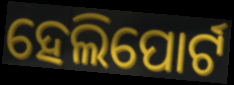
ହେଲିପୋର୍ଟ